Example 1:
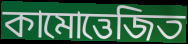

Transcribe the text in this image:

কামোত্তেজিত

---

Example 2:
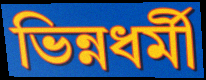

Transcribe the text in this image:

ভিন্নধর্মী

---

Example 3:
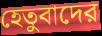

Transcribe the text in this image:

হেতুবাদের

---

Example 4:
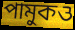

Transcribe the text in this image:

পামুকও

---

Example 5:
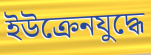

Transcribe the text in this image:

ইউক্রেনযুদ্ধে